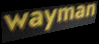
wayman